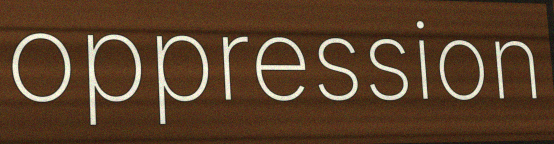
oppression